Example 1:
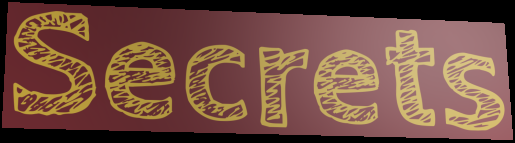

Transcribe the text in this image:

Secrets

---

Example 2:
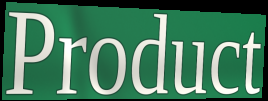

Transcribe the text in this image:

Product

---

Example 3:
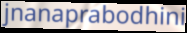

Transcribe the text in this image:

jnanaprabodhini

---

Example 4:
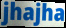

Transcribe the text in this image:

jhajha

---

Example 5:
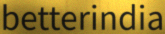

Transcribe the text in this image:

betterindia